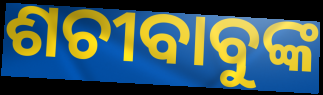
ଶଚୀବାବୁଙ୍କ